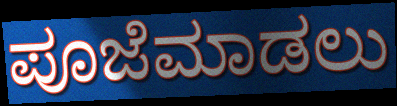
ಪೂಜೆಮಾಡಲು